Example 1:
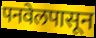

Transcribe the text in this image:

पनवेलपासून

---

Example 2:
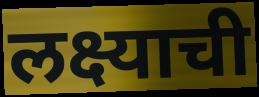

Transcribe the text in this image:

लक्ष्याची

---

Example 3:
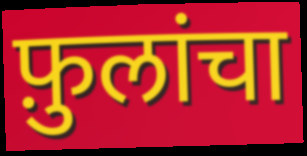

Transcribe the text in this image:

फ़ुलांचा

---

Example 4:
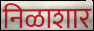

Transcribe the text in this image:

निळाशार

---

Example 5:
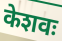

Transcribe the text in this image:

केशवः